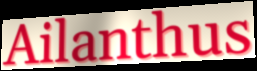
Ailanthus